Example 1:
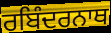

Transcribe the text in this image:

ਰਬਿੰਦਰਨਾਥ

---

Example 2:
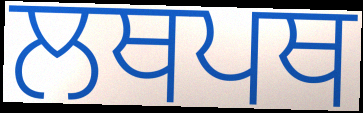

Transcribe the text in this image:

ਲਥਪਥ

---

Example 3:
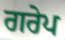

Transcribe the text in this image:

ਗਰੇਪ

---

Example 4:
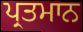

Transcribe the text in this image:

ਪ੍ਰਤਮਾਨ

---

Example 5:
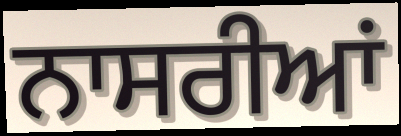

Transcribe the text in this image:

ਨਾਸਰੀਆਂ